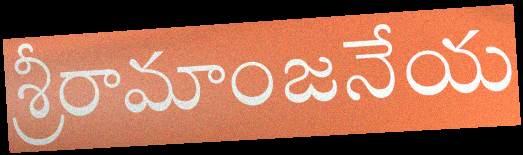
శ్రీరామాంజనేయ